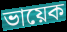
ভায়েক